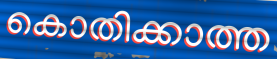
കൊതിക്കാത്ത